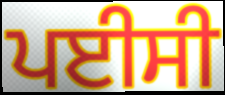
ਪਈਸੀ